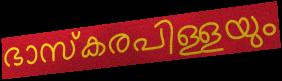
ഭാസ്കരപിള്ളയും